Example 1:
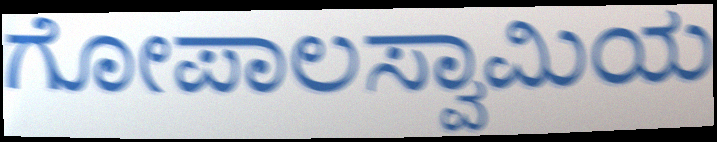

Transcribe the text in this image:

ಗೋಪಾಲಸ್ವಾಮಿಯ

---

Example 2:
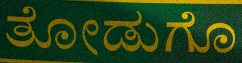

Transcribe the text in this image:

ತೋಡುಗೊ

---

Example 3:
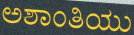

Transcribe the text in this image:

ಅಶಾಂತಿಯು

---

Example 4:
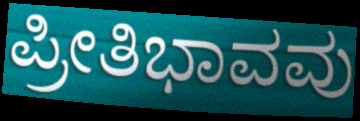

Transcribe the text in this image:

ಪ್ರೀತಿಭಾವವು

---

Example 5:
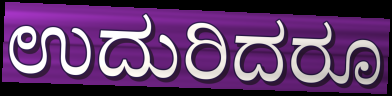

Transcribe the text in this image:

ಉದುರಿದರೂ